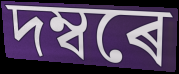
দম্বৰে